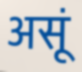
असूं